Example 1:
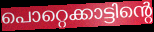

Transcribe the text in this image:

പൊറ്റെക്കാട്ടിന്റെ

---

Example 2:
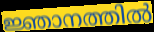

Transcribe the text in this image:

ജ്ഞാനത്തിൽ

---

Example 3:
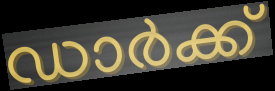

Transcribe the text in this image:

ഡാർക്ക്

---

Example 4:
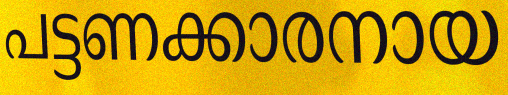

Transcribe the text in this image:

പട്ടണക്കാരനായ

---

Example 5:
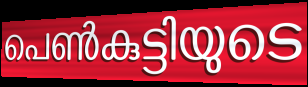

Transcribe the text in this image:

പെൺകുട്ടിയുടെ